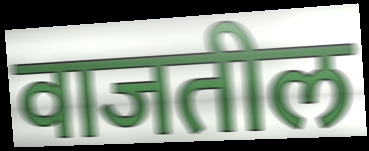
वाजतील